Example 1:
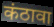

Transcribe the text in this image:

कंठावा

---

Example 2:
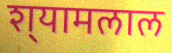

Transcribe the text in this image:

श्यामलाल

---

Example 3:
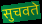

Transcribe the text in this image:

सुचवते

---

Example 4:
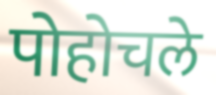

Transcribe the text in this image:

पोहोचले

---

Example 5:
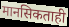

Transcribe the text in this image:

मानसिकताही